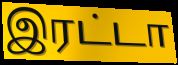
இரட்டா